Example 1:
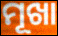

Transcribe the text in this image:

ମୂଖା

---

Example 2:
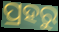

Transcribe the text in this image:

ପ୍ରହରୁ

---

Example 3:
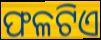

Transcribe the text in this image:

ଫଳଟିଏ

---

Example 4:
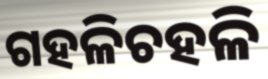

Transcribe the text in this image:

ଗହଳିଚହଳି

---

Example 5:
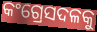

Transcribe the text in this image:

କଂଗ୍ରେସଦଳକୁ